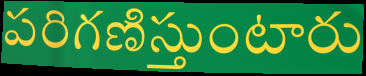
పరిగణిస్తుంటారు